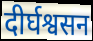
दीर्घश्वसन